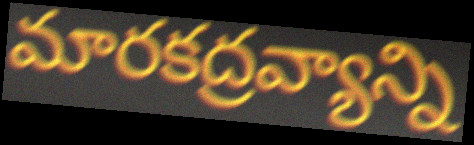
మారకద్రవ్యాన్ని